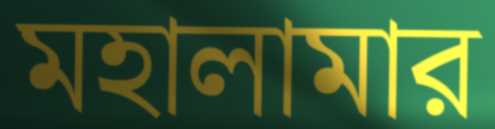
মহালামার